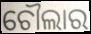
ଚୌଲାର